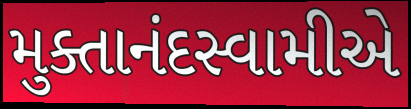
મુક્તાનંદસ્વામીએ